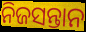
ନିଜସନ୍ତାନ